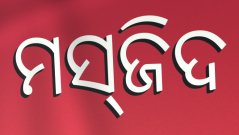
ମସ୍‌ଜିଦ